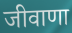
जीवाणा